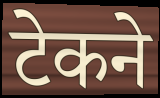
टेकने